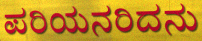
ಪರಿಯನರಿದನು